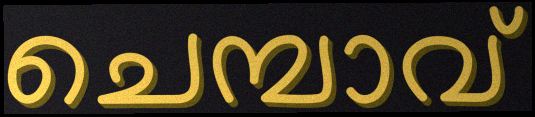
ചെമ്പാവ്